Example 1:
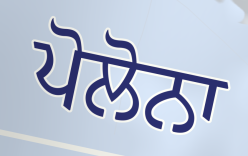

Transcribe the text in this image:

ਪੋਲੋਨਾ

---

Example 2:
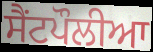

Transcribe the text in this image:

ਸੈਂਟਪੌਲੀਆ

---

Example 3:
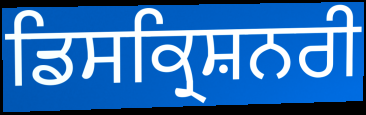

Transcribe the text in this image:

ਡਿਸਕ੍ਰਿਸ਼ਨਰੀ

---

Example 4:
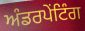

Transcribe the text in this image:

ਅੰਡਰਪੇਂਟਿੰਗ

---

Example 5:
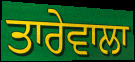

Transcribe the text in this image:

ਤਾਰੇਵਾਲਾ